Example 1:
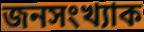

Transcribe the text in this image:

জনসংখ্যাক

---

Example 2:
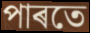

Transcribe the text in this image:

পাৰতে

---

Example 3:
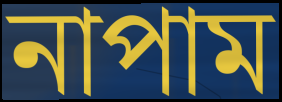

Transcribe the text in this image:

নাপাম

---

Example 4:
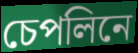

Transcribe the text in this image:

চেপলিনে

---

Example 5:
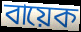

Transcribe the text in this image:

বায়েক